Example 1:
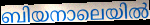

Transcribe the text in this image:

ബിയനാലെയിൽ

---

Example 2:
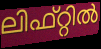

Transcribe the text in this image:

ലിഫ്റ്റിൽ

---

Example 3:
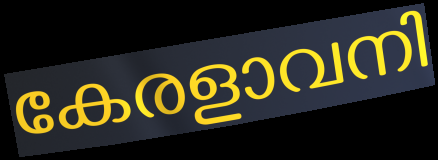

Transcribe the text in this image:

കേരളാവനി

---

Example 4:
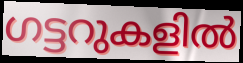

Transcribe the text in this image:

ഗട്ടറുകളിൽ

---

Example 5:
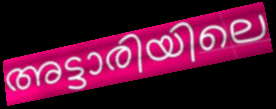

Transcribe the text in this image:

അട്ടാരിയിലെ